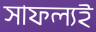
সাফল্যই